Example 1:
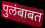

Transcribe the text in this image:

पुलंबाबत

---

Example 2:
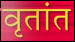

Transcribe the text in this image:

वृतांत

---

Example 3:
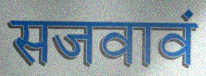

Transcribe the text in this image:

सजवावं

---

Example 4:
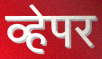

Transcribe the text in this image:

व्हेपर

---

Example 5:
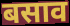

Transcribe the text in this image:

बसाव